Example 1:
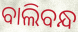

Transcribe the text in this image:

ବାଲିବନ୍ଧ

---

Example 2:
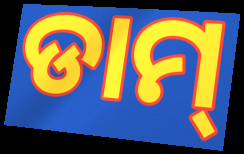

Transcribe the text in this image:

ଡାମ୍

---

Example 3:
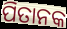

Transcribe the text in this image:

ପିତାନକ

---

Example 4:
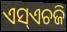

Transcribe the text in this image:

ଏସ୍ଏଚଜି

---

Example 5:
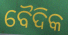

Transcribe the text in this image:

ବୈଦିକ